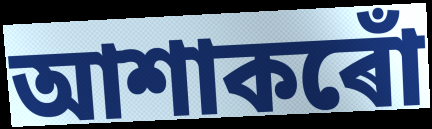
আশাকৰোঁ